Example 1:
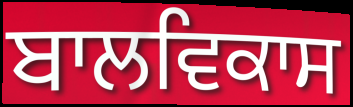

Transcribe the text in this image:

ਬਾਲਵਿਕਾਸ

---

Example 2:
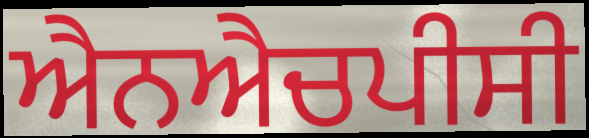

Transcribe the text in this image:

ਐਨਐਚਪੀਸੀ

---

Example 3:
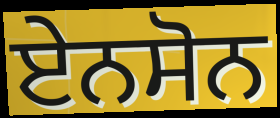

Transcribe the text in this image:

ਏਨਸੋਨ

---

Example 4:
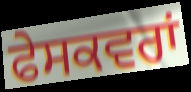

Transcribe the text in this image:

ਫੇਸਕਵਰਾਂ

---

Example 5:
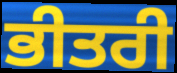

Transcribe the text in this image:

ਭੀਤਰੀ